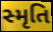
સ્મૃતિ